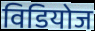
विडियोज